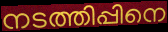
നടത്തിപ്പിനെ